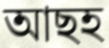
আছহ